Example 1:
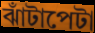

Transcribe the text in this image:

ঝাঁটাপেটা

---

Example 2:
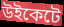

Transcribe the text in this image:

উইকেটে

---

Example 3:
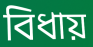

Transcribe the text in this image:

বিধায়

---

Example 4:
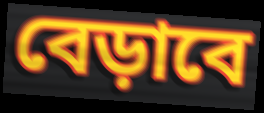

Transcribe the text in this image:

বেড়াবে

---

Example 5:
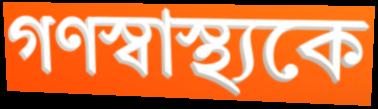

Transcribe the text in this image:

গণস্বাস্থ্যকে